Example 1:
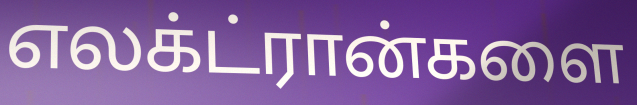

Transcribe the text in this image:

எலக்ட்ரான்களை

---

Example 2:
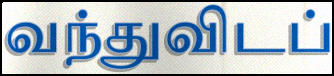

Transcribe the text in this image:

வந்துவிடப்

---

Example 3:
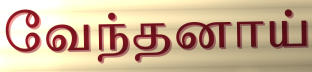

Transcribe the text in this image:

வேந்தனாய்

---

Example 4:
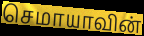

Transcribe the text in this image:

செமாயாவின்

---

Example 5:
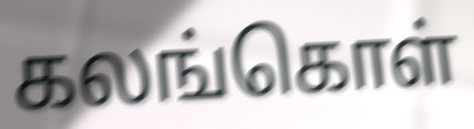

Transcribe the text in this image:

கலங்கொள்